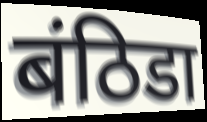
बंठिडा